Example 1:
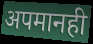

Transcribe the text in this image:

अपमानही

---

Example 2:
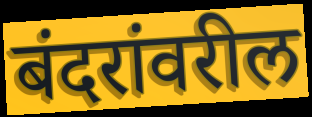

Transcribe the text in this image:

बंदरांवरील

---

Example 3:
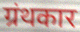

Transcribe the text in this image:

ग्रंथकार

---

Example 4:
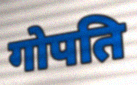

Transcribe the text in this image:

गोपति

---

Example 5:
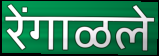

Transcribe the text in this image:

रेंगाळले